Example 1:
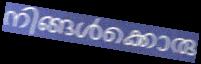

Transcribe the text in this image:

നിങ്ങൾക്കൊരു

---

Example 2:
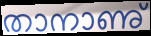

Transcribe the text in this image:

താനാണു്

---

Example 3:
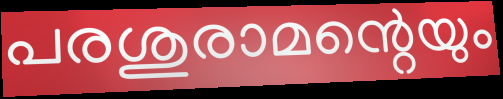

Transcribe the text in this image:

പരശുരാമന്റെയും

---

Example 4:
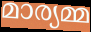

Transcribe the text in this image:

മാര്യമ്മ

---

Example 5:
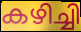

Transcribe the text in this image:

കഴിച്ചി